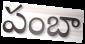
పంబా